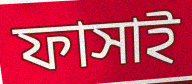
ফাসাই